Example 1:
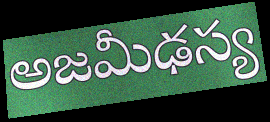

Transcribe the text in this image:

అజమీఢస్య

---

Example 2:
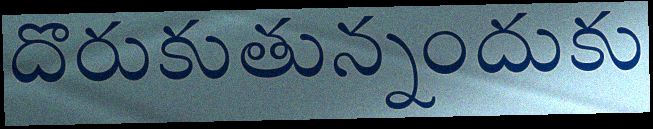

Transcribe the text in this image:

దొరుకుతున్నందుకు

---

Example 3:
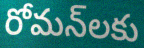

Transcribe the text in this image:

రోమన్‌లకు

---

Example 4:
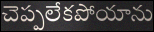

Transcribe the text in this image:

చెప్పలేకపోయాను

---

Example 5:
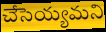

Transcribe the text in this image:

చేసెయ్యమని